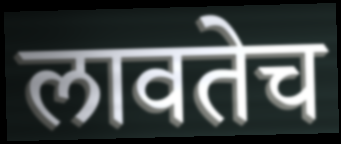
लावतेच